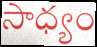
సాధ్యం